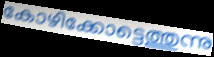
കോഴിക്കോട്ടെത്തുന്നു